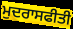
ਮੁਦਰਾਸਫੀਤੀ